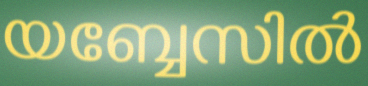
യബ്ബേസിൽ